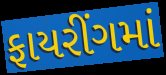
ફાયરીંગમાં